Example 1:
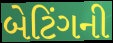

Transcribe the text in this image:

બેટિંગની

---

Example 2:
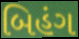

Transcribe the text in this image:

બિહંગ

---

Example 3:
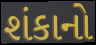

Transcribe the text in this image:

શંકાનો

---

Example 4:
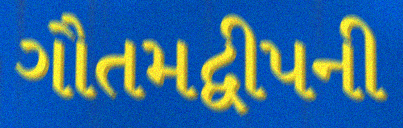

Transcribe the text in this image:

ગૌતમદ્વીપની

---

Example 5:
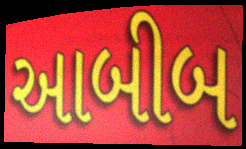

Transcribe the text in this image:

આબીબ